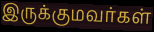
இருக்குமவர்கள்